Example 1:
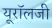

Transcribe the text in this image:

यूरॉलजी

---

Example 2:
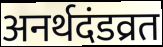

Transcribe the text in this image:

अनर्थदंडव्रत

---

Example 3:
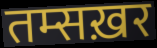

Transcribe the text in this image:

तम्सख़र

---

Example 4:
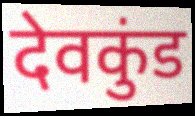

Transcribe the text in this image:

देवकुंड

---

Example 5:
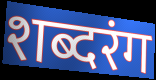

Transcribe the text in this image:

शब्दरंग